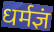
धर्मज्ञं